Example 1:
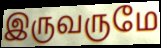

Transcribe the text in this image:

இருவருமே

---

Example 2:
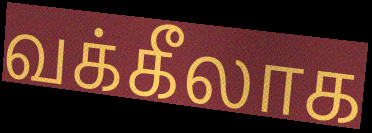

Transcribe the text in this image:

வக்கீலாக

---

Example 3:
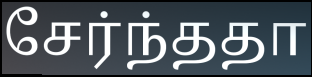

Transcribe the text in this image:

சேர்ந்ததா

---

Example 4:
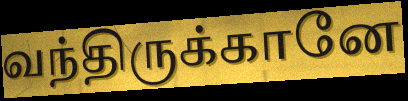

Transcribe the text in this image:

வந்திருக்கானே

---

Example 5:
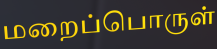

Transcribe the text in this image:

மறைப்பொருள்